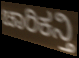
ಚಾರಿಕನ್ತಿ